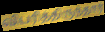
விபரித்திருந்தார்